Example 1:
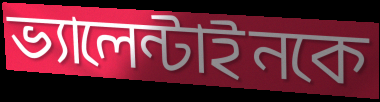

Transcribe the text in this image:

ভ্যালেন্টাইনকে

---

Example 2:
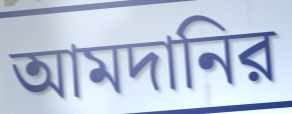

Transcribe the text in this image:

আমদানির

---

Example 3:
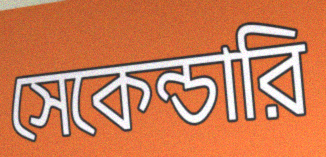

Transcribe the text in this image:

সেকেন্ডারি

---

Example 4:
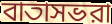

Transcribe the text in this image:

বাতাসভরা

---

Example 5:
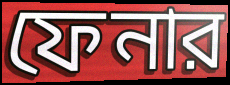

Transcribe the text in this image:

ফেনার